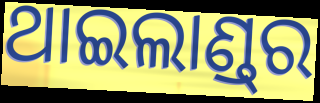
ଥାଇଲାଣ୍ଡ୍‌ର